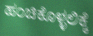
ಹಂಚಿಕೊಳ್ಳಲಿಕ್ಕೆ